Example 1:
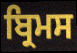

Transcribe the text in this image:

ਬ੍ਰਿਮਸ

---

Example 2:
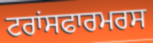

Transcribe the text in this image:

ਟਰਾਂਸਫਾਰਮਰਸ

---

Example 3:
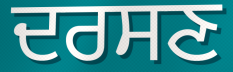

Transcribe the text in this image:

ਦਰਸਣ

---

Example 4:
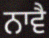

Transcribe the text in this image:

ਨਾਵੈ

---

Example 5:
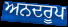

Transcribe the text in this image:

ਅਨਦਰੂਪ